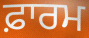
ਫ਼ਾਰਮ